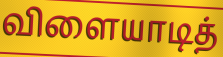
விளையாடித்